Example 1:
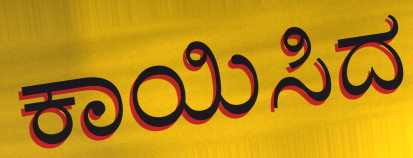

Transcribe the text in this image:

ಕಾಯಿಸಿದ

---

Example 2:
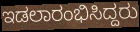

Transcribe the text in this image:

ಇಡಲಾರಂಭಿಸಿದ್ದರು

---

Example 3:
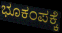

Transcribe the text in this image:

ಭೂಕಂಪಕ್ಕೆ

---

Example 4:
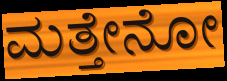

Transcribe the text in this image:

ಮತ್ತೇನೋ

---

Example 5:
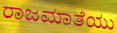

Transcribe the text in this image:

ರಾಜಮಾತೆಯು